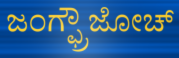
ಜಂಗ್ಫ್ರೌಜೋಚ್